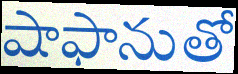
షాఫానుతో